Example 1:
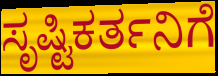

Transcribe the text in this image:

ಸೃಷ್ಟಿಕರ್ತನಿಗೆ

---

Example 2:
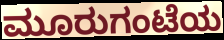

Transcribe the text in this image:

ಮೂರುಗಂಟೆಯ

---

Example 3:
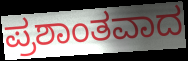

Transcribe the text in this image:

ಪ್ರಶಾಂತವಾದ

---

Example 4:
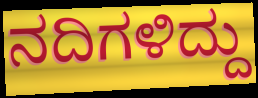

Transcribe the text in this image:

ನದಿಗಳಿದ್ದು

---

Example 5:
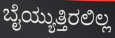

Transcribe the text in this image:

ಬೈಯ್ಯುತ್ತಿರಲಿಲ್ಲ